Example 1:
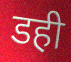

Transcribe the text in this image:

डही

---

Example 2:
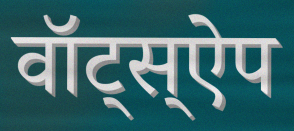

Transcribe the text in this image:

वॉट्स्ऐप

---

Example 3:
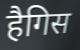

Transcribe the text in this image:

हैगिस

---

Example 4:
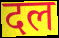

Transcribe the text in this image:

दल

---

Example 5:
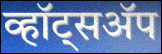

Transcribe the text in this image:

व्हॉट्सॲप